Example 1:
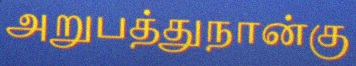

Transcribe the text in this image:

அறுபத்துநான்கு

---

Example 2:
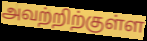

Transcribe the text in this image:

அவற்றிற்குள்ள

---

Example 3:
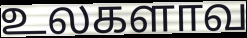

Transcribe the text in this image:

உலகளாவ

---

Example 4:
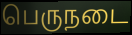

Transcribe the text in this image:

பெருநடை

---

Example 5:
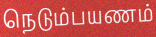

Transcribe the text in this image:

நெடும்பயணம்